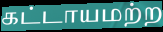
கட்டாயமற்ற